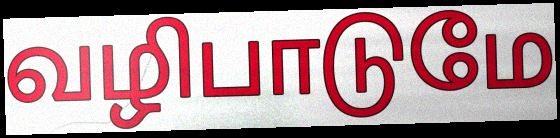
வழிபாடுமே